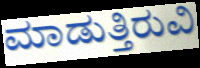
ಮಾಡುತ್ತಿರುವಿ